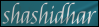
shashidhar